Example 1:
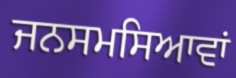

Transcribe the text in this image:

ਜਨਸਮਸਿਆਵਾਂ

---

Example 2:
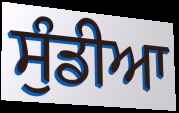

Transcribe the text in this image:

ਸੁੰਡੀਆ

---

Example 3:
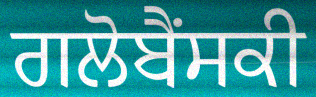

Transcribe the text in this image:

ਗਲੋਬੈਂਸਕੀ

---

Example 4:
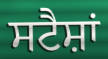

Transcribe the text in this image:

ਸਟੈਸ਼ਾਂ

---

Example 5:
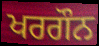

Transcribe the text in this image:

ਖਰਗੌਨ